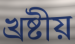
খ্রষ্টীয়